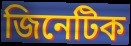
জিনেটিক